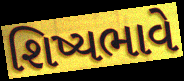
શિષ્યભાવે